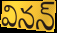
వినన్